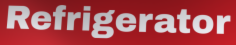
Refrigerator